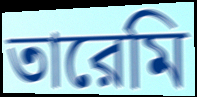
তারেমি